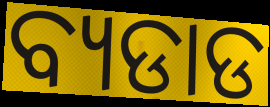
ବ୍ୟଡାଡ